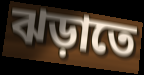
ঝড়াতে